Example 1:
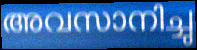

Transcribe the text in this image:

അവസാനിച്ചു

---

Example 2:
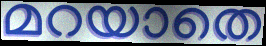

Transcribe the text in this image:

മറയാതെ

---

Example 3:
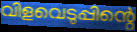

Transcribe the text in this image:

വിളവെടുപ്പിന്റെ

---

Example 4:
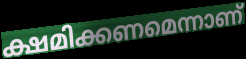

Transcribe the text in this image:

ക്ഷമിക്കണമെന്നാണ്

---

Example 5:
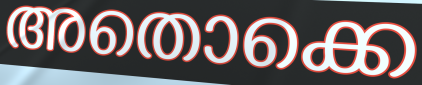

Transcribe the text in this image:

അതൊക്കെ